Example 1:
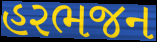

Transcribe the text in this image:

હરભજન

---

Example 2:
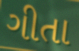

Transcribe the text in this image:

ગીતા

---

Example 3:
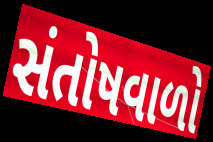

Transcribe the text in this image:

સંતોષવાળો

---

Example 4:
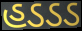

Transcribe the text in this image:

હડડડ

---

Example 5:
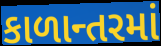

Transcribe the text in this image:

કાળાન્તરમાં